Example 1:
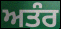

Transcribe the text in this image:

ਅਤੰਰ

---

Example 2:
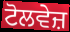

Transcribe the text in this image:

ਟੋਲਵੇਜ਼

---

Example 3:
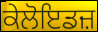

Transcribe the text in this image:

ਕੇਲੋਇਡਜ਼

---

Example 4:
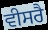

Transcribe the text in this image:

ਵੀਸਰੈ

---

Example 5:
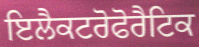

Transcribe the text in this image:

ਇਲੈਕਟਰੋਫੋਰੈਟਿਕ